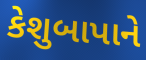
કેશુબાપાને